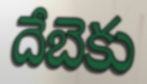
దేబెకు